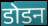
डोडन